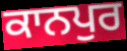
ਕਾਨਪੁਰ